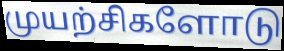
முயற்சிகளோடு